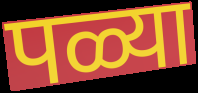
पळ्या